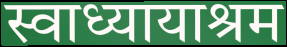
स्वाध्यायाश्रम